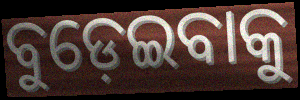
ବୁଡ଼େଇବାକୁ